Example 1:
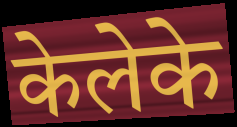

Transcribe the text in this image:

केलेके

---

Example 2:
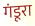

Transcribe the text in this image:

गंडूरा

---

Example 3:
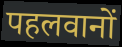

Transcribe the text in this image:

पहलवानों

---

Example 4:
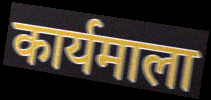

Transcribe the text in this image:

कार्यमाला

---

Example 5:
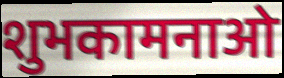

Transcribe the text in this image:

शुभकामनाओ